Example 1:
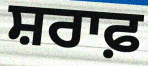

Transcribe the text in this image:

ਸ਼ਰਾਫ਼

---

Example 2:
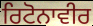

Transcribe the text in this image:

ਰਿਟੋਨਾਵੀਰ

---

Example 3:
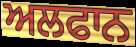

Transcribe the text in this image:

ਅਲਫਾਨ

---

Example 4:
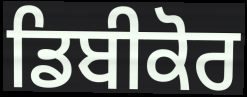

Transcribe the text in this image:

ਡਿਬੀਕੋਰ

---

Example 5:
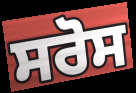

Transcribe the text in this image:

ਸਰੋਸ